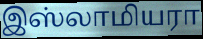
இஸ்லாமியரா